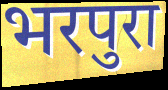
भरपुरा